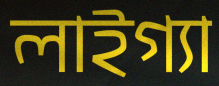
লাইগ্যা